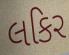
લકિર